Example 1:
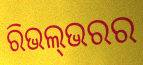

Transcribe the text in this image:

ରିଭଲ୍‍ଭରର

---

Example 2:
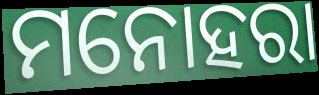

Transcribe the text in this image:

ମନୋହରା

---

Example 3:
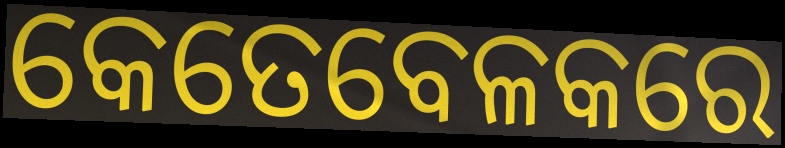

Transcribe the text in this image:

କେତେବେଳକରେ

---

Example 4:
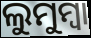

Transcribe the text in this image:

ଲୁମୁମ୍ବା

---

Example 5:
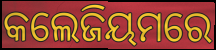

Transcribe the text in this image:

କଲେଜିୟମରେ